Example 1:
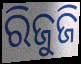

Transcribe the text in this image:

ରିଜୁଜି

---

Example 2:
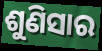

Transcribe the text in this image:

ଶୁଣିସାର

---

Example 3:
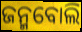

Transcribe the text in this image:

ଜନ୍ମବୋଲି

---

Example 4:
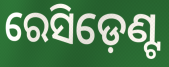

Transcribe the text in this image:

ରେସିଡ଼େଣ୍ଟ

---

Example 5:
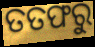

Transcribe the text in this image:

ତତଫରୁ